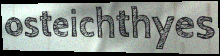
osteichthyes